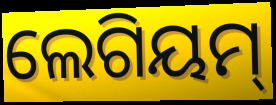
ଲେଗିୟମ୍